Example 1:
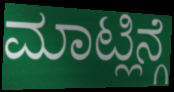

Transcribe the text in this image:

ಮಾಟ್ಲಿನ್ಗೆ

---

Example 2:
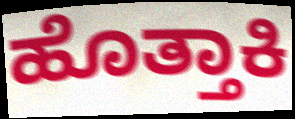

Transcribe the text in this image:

ಹೊತ್ತಾಕಿ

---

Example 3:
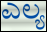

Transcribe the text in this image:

ಎಲ್ಯ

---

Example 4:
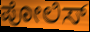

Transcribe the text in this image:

ಪೋಲಿಸ್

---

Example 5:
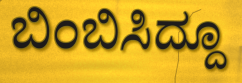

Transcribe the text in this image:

ಬಿಂಬಿಸಿದ್ದೂ